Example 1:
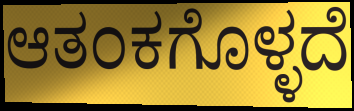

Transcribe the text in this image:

ಆತಂಕಗೊಳ್ಳದೆ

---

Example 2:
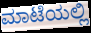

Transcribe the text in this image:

ಮಾಟೆಯಲ್ಲಿ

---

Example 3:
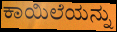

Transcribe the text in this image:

ಕಾಯಿಲೆಯನ್ನು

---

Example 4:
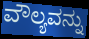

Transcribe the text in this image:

ವೌಲ್ಯವನ್ನು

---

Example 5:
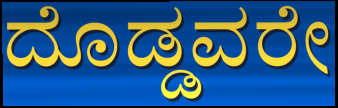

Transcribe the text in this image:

ದೊಡ್ಡವರೇ